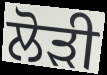
ਲੋੜੀ